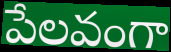
పేలవంగా